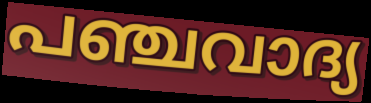
പഞ്ചവാദ്യ